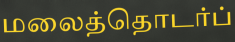
மலைத்தொடர்ப்